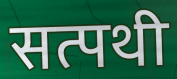
सत्पथी